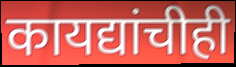
कायद्यांचीही